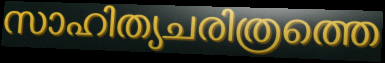
സാഹിത്യചരിത്രത്തെ